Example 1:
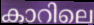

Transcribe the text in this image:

കാറിലെ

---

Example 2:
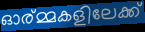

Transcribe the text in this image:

ഓര്മ്മകളിലേക്ക്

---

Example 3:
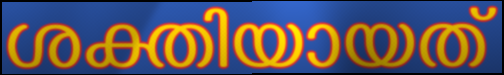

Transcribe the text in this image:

ശക്തിയായത്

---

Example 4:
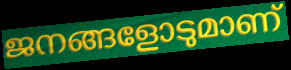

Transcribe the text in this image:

ജനങ്ങളോടുമാണ്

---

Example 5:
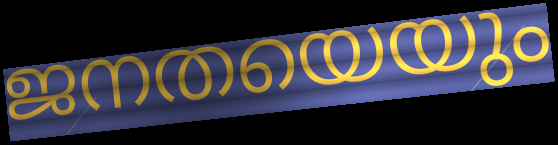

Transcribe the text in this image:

ജനതയെയും